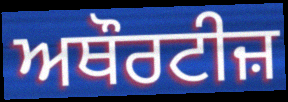
ਅਥੌਰਟੀਜ਼